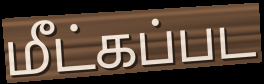
மீட்கப்பட